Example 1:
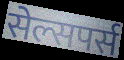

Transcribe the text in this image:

सेल्सपर्स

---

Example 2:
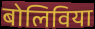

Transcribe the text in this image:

बोलिविया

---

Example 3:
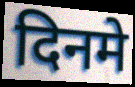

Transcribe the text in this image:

दिनमे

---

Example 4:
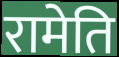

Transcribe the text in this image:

रामेति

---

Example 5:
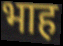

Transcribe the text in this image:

भाह